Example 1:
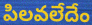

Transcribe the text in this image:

పిలవలేదేం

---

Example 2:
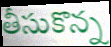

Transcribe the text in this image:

తీసుకొన్న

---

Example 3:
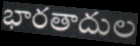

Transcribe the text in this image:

భారతాదుల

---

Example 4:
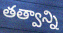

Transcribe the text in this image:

తత్వాన్ని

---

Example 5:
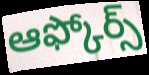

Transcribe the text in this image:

ఆఫ్కోర్స్